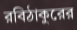
রবিঠাকুরের